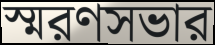
স্মরণসভার